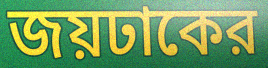
জয়ঢাকের